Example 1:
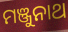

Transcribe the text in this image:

ମଞ୍ଜୁନାଥ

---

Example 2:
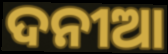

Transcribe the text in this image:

ଦନୀଆ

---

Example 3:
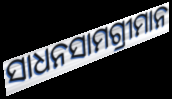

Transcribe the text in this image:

ସାଧନସାମଗ୍ରୀମାନ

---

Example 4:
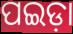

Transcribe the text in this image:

ପଇଡ଼ା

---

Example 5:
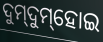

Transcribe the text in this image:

ଦୁମ୍‌ଦୁମ୍‌ହୋଇ